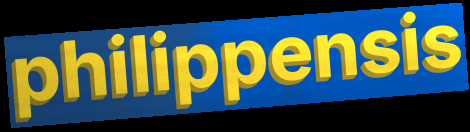
philippensis